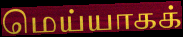
மெய்யாகக்